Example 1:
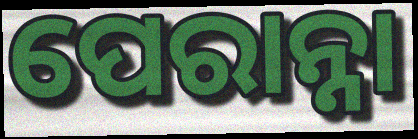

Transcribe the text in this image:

ପେରାନ୍ନା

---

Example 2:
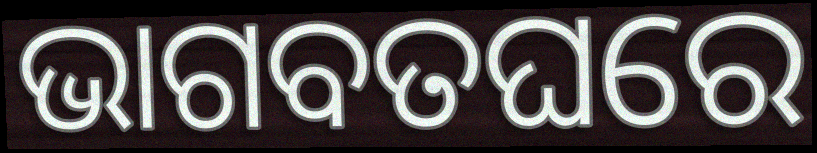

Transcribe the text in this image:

ଭାଗବତଘରେ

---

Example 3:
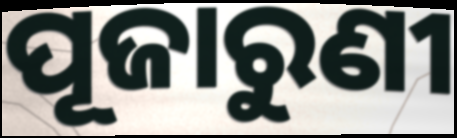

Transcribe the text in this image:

ପୂଜାରୁଣୀ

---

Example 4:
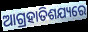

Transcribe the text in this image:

ଆଗ୍ରହାତିଶଯ୍ୟରେ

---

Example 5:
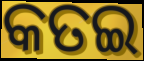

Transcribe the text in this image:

କତଇ